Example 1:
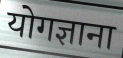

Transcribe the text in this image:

योगज्ञाना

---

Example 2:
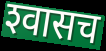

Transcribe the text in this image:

श्‍वासच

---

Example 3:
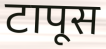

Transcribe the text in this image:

टापूस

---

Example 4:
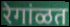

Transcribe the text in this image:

रेगांळत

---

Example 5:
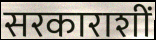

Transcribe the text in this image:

सरकाराशीं